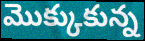
మొక్కుకున్న